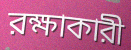
রক্ষাকারী